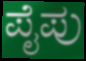
ಪೈಪು